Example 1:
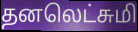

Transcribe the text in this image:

தனலெட்சுமி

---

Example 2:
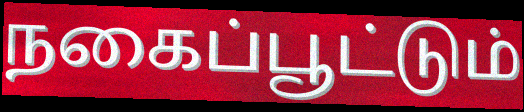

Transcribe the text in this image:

நகைப்பூட்டும்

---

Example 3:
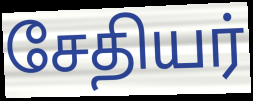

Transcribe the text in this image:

சேதியர்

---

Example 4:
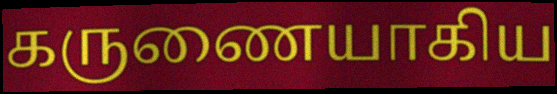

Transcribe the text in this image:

கருணையாகிய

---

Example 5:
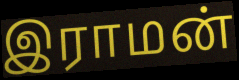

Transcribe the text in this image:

இராமன்